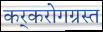
कर्करोगग्रस्त